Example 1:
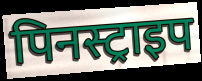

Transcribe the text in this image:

पिनस्ट्राइप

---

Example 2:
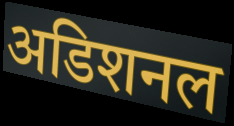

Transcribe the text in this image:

अडिशनल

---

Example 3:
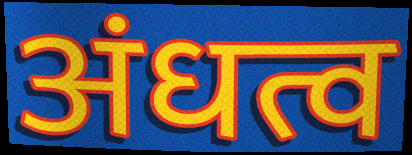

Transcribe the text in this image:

अंधत्व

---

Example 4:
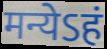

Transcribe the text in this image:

मन्येऽहं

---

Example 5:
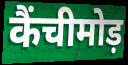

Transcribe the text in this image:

कैंचीमोड़